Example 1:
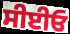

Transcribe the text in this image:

ਸੀਈਓ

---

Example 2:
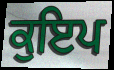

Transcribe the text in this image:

ਕੁਇਪ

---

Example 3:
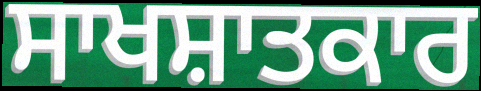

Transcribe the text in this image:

ਸਾਖਸ਼ਾਤਕਾਰ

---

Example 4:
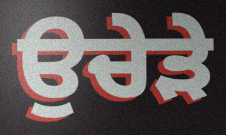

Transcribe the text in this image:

ਉਚੇੜੇ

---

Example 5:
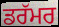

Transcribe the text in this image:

ਡਰੱਮਰ